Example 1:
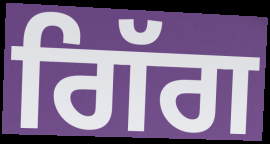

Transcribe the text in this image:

ਗਿੱਗ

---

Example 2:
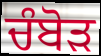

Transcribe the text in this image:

ਚੰਬੋੜ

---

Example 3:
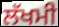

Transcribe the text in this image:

ਲੱਖਮੀ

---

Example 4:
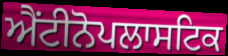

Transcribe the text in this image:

ਐਂਟੀਨੋਪਲਾਸਟਿਕ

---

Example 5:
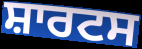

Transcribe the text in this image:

ਸ਼ਾਰਟਸ